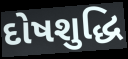
દોષશુદ્ધિ